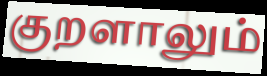
குறளாலும்